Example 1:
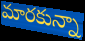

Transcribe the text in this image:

మారకున్నా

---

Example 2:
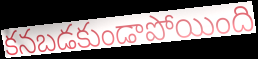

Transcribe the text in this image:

కనబడకుండాపోయింది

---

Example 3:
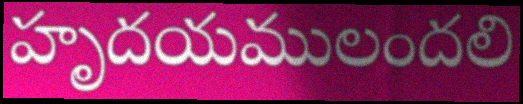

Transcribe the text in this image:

హృదయములందలి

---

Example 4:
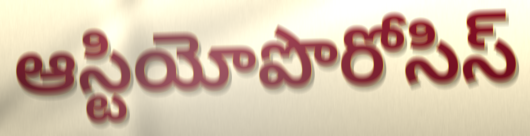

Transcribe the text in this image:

ఆస్టియోపొరోసిస్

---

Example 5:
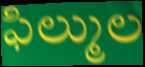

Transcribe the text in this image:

ఫిల్ముల